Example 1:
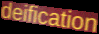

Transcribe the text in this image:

deification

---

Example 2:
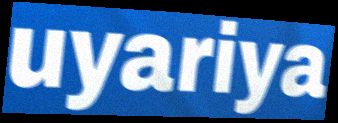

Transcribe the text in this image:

uyariya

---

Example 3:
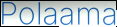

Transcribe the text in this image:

Polaama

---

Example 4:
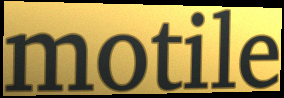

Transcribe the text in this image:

motile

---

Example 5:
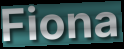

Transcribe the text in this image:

Fiona